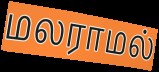
மலராமல்